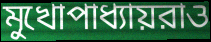
মুখোপাধ্যায়রাও